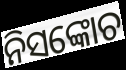
ନିସଙ୍କୋଚ